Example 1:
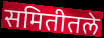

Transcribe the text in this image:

समितीतले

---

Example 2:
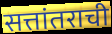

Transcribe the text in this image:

सत्तांतराची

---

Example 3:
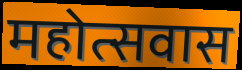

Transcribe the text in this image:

महोत्सवास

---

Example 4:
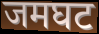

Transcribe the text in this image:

जमघट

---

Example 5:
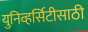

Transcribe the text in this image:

युनिव्हर्सिटीसाठी